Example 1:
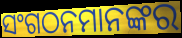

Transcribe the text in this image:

ସଂଗଠନମାନଙ୍କର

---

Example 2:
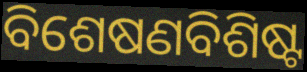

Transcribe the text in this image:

ବିଶେଷଣବିଶିଷ୍ଟ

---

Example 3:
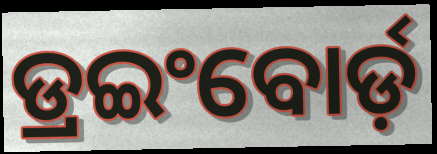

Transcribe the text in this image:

ଡ୍ରଇଂବୋର୍ଡ଼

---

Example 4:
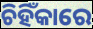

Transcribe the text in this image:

ଚିହିଁକାରେ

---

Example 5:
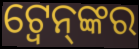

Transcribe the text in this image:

ଟ୍ୱେନ୍‌ଙ୍କର